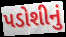
પડોશીનું